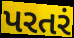
પરતરં